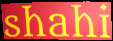
shahi